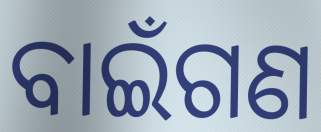
ବାଇଁଗଣ